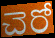
చెరో